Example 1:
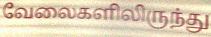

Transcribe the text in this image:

வேலைகளிலிருந்து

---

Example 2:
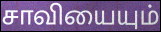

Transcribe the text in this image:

சாவியையும்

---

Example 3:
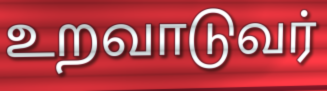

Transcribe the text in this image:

உறவாடுவர்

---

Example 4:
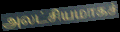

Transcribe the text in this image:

அலட்சியமாகச்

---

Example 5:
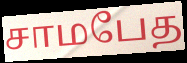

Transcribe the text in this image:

சாமபேத